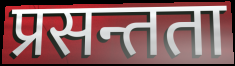
प्रसन्तता